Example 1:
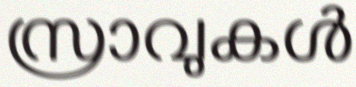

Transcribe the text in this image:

സ്രാവുകൾ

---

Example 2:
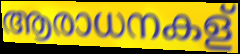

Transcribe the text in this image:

ആരാധനകള്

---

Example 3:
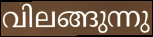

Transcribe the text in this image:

വിലങ്ങുന്നു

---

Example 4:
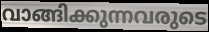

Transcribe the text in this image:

വാങ്ങിക്കുന്നവരുടെ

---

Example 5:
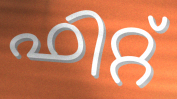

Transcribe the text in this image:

ഫിറ്റ്